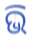
ଭି